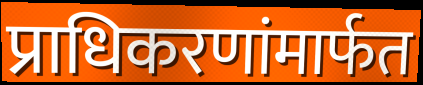
प्राधिकरणांमार्फत